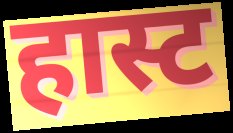
हास्ट